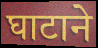
घाटाने